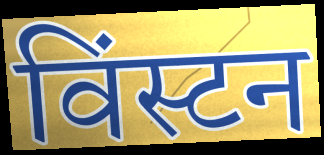
विंस्टन